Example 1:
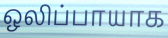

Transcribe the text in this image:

ஒலிப்பாயாக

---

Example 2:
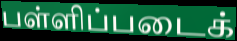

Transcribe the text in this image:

பள்ளிப்படைக்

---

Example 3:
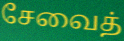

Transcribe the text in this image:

சேவைத்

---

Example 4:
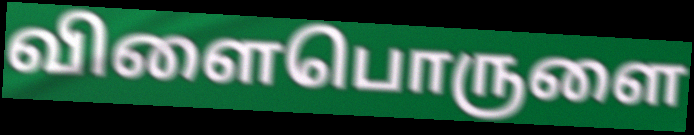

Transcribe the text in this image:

விளைபொருளை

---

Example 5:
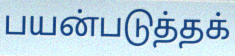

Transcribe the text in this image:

பயன்படுத்தக்